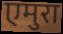
एमुरा